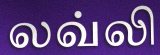
லவ்லி